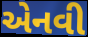
એનવી